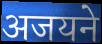
अजयने